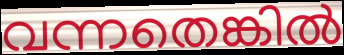
വന്നതെങ്കിൽ